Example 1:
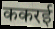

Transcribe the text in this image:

ककरई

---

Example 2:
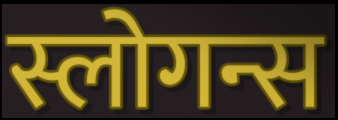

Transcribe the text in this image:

स्लोगन्स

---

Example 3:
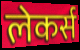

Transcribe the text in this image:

लेकर्स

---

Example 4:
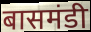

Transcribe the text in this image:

बासमंडी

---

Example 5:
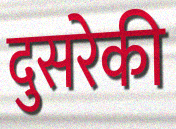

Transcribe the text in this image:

दुसरेकी